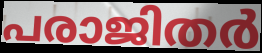
പരാജിതർ